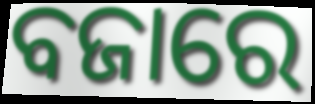
ବଜାରେ